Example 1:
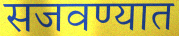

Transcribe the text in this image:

सजवण्यात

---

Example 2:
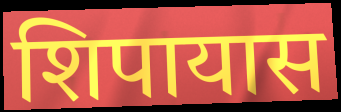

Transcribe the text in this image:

शिपायास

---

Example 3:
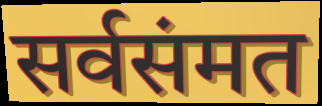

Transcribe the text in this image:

सर्वसंमत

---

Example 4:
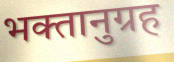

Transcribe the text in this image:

भक्तानुग्रह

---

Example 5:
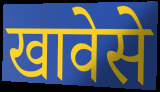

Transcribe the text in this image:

खावेसे